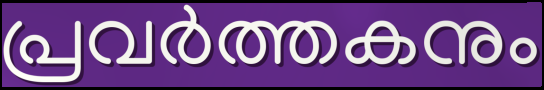
പ്രവർത്തകനും